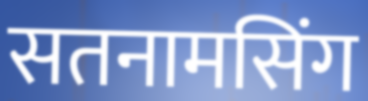
सतनामसिंग